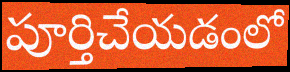
పూర్తిచేయడంలో